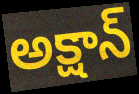
అక్షాన్